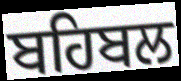
ਬਹਿਬਲ